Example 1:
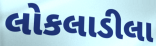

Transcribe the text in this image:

લોકલાડીલા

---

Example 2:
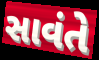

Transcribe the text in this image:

સાવંતે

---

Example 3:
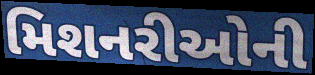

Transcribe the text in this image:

મિશનરીઓની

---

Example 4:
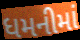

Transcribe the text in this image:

ધમનીમાં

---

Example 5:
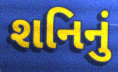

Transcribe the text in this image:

શનિનું